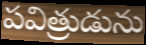
పవిత్రుడును